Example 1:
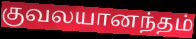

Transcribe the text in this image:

குவலயானந்தம்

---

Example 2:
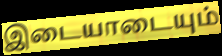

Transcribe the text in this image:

இடையாடையும்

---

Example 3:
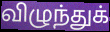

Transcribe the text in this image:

விழுந்துக்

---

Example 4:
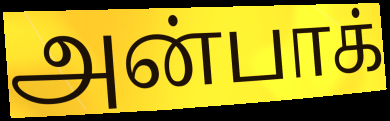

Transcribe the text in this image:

அன்பாக்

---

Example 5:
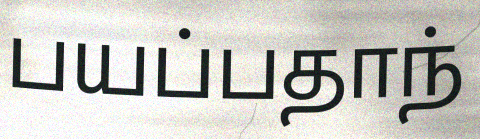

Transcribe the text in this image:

பயப்பதாந்